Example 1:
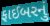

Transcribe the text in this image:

ફાઈબરનું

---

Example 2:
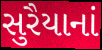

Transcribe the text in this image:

સુરૈયાનાં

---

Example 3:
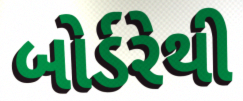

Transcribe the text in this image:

બોર્ડરેથી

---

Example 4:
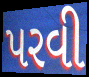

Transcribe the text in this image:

પરવી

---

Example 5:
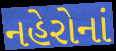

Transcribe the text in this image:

નહેરોનાં